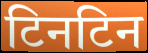
टिनटिन